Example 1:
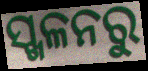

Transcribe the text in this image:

ସ୍ଖଳନରୁ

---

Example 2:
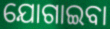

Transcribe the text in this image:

ଯୋଗାଇବା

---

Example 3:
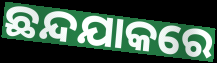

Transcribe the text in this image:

ଛନ୍ଦଯାକରେ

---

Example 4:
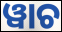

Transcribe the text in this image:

ୱାଚ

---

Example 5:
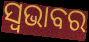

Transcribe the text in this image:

ସ୍ଵଭାବର